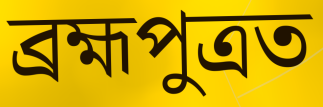
ব্ৰহ্মপুত্ৰত